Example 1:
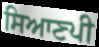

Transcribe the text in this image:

ਸਿਆਣਪੀ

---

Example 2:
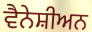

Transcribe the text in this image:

ਵੈਨੇਸ਼ੀਅਨ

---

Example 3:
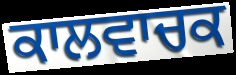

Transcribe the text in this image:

ਕਾਲਵਾਚਕ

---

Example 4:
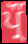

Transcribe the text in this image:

ਪ੍ਰੌਂ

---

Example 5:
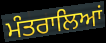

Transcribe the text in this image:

ਮੰਤਰਾਲਿਆਂ